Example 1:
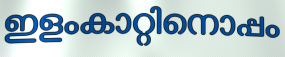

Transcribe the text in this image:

ഇളംകാറ്റിനൊപ്പം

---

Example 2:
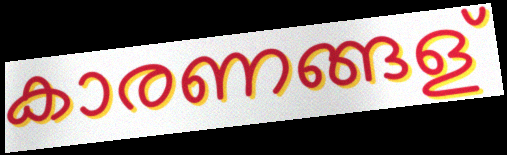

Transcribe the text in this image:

കാരണങ്ങള്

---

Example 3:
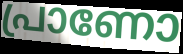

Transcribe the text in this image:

പ്രാണോ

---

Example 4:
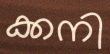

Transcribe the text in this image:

ക്കനി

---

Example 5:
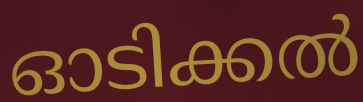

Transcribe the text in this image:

ഓടിക്കൽ